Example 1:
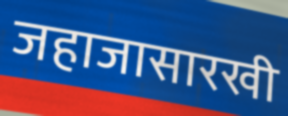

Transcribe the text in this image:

जहाजासारखी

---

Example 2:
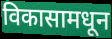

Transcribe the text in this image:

विकासामधून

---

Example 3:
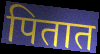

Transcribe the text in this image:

पितात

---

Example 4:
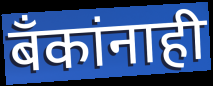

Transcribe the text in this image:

बँकांनाही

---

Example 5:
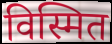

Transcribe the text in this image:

विस्मित